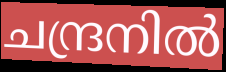
ചന്ദ്രനിൽ